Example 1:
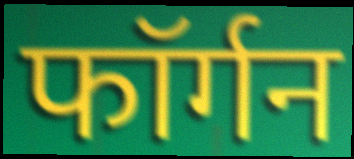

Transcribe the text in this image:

फॉर्गन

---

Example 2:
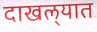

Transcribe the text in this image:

दाखल्यात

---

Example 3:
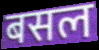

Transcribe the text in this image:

बसल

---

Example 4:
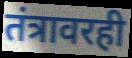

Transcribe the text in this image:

तंत्रावरही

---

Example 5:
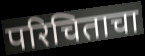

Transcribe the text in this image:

परिचिताचा